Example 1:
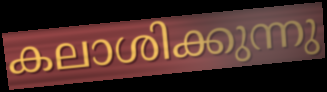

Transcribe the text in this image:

കലാശിക്കുന്നു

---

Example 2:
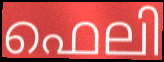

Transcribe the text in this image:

ഫെലി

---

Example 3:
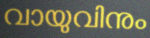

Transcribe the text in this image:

വായുവിനും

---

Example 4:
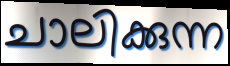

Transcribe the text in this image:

ചാലിക്കുന്ന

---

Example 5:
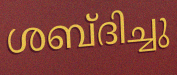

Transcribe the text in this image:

ശബ്ദിച്ചു